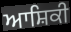
ਆਸ਼ਿਕੀ